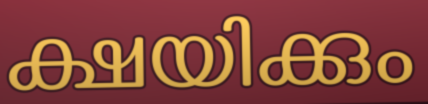
ക്ഷയിക്കും